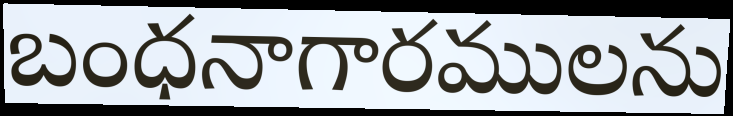
బంధనాగారములను